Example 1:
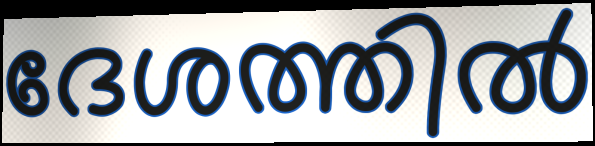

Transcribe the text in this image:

ദേശത്തിൽ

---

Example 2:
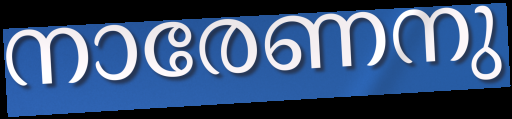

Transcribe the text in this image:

നാരേണനു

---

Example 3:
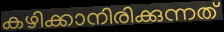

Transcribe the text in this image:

കഴിക്കാനിരിക്കുന്നത്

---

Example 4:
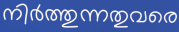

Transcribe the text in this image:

നിർത്തുന്നതുവരെ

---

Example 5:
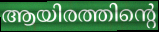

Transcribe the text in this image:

ആയിരത്തിന്റെ